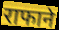
राफाने